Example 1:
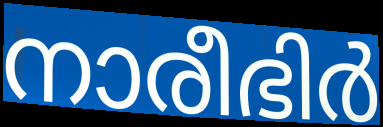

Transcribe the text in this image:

നാരീഭിർ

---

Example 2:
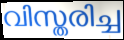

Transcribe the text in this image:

വിസ്തരിച്ച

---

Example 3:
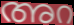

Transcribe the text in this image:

അറ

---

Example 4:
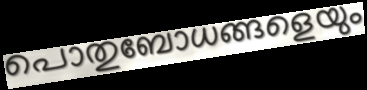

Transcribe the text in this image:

പൊതുബോധങ്ങളെയും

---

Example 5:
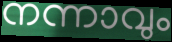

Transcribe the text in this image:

നന്നാവും